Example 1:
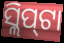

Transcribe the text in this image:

ସ୍ଲିପ୍‌ଟା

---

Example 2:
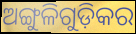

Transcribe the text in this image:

ଅଙ୍ଗୁଳିଗୁଡ଼ିକର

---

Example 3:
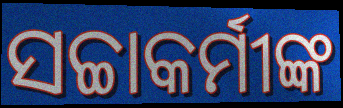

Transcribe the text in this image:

ସଚ୍ଚାକର୍ମୀଙ୍କ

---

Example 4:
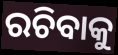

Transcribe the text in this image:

ରଚିବାକୁ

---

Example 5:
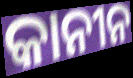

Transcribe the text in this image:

କାନୀନ